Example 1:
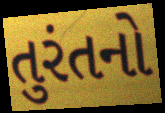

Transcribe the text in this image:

તુરંતનો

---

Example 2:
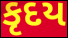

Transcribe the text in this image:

કૃદય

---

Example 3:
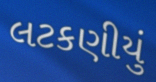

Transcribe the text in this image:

લટકણીયું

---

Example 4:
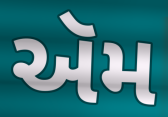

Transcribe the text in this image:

ઍમ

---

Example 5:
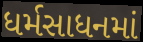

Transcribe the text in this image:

ધર્મસાધનમાં